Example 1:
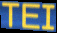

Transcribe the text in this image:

TEI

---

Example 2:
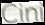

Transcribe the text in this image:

Cini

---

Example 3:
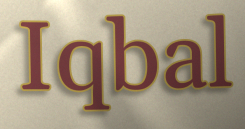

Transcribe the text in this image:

Iqbal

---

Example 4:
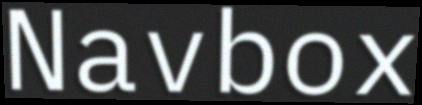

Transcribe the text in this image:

Navbox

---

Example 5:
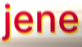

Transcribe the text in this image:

jene